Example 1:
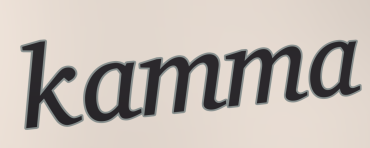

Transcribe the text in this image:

kamma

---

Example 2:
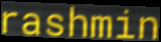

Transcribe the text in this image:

rashmin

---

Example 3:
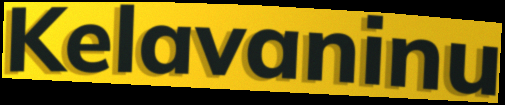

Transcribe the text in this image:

Kelavaninu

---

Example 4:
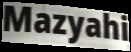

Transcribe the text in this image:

Mazyahi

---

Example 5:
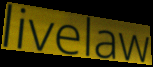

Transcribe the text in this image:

livelaw